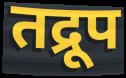
तद्रूप